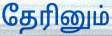
தேரினும்